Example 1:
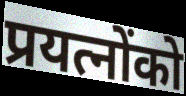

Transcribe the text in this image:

प्रयत्नोंको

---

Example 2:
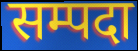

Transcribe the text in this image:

सम्पदा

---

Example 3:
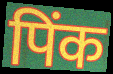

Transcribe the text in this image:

पिंक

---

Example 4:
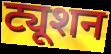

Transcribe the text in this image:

ट्यूशन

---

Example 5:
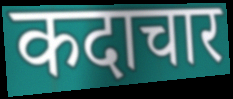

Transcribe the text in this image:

कदाचार